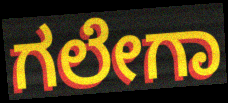
ಗಲೇಗಾ